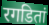
रगडितां